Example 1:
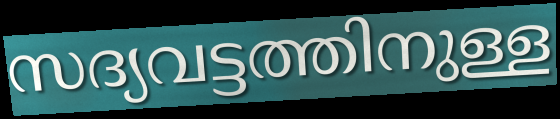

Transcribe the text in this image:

സദ്യവട്ടത്തിനുള്ള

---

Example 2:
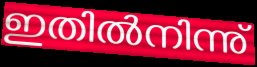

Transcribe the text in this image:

ഇതിൽനിന്നു്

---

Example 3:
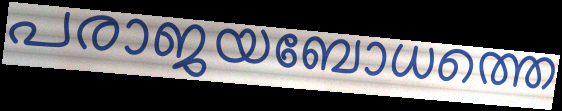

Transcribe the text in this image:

പരാജയബോധത്തെ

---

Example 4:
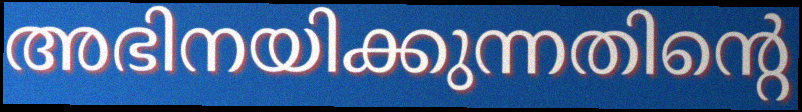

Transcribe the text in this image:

അഭിനയിക്കുന്നതിന്റെ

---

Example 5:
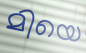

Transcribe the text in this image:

മിയെ